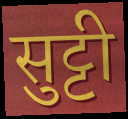
सुट्टी